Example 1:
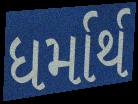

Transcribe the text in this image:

ધર્માર્થ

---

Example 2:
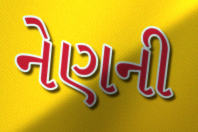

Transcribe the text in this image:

નેણની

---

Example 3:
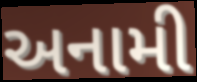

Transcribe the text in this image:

અનામી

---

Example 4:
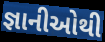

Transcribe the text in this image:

જ્ઞાનીઓથી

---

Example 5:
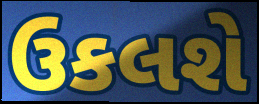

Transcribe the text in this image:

ઉકલશે